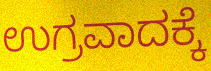
ಉಗ್ರವಾದಕ್ಕೆ